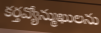
కర్తవ్యోన్ముఖులను